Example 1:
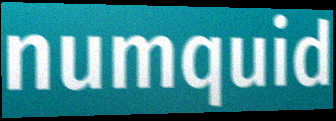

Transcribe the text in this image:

numquid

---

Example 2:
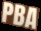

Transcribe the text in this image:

PBA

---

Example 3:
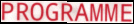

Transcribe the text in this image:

PROGRAMME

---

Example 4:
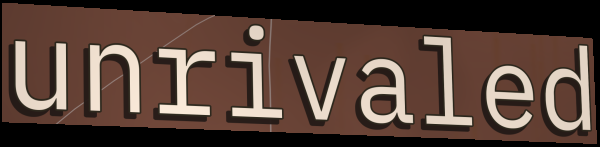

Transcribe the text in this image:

unrivaled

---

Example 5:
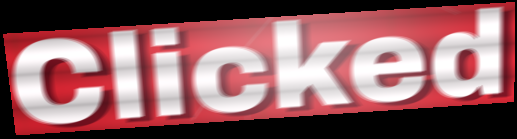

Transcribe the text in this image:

Clicked